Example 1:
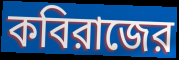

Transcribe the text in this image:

কবিরাজের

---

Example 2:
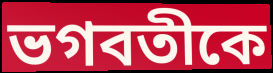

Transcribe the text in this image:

ভগবতীকে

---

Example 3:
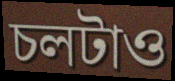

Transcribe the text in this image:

চলটাও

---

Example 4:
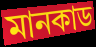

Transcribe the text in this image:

মানকাড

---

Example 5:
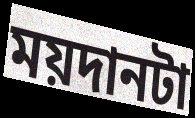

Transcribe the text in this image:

ময়দানটা